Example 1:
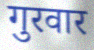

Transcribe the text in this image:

गुरवार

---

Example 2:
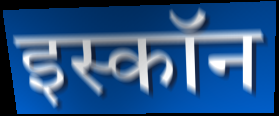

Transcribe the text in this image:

इस्कॉन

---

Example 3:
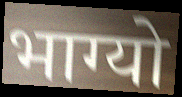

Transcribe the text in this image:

भाग्यो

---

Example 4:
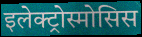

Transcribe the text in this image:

इलेक्ट्रोस्मोसिस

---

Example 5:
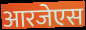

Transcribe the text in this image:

आरजेएस